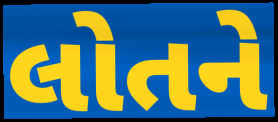
લોતને